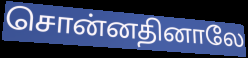
சொன்னதினாலே